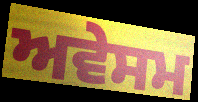
ਅਵੇਸਮ